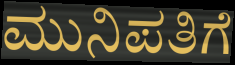
ಮುನಿಪತಿಗೆ